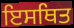
ਇਸਥਿਤ